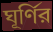
ঘূর্ণির